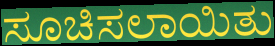
ಸೂಚಿಸಲಾಯಿತು